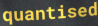
quantised